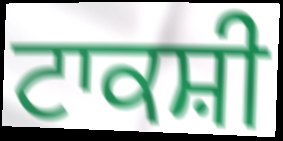
ਟਾਕਸ਼ੀ